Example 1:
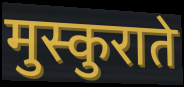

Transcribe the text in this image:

मुस्कुराते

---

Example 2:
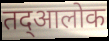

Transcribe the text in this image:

तद्आलोक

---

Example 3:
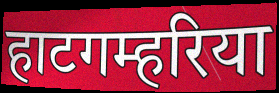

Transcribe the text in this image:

हाटगम्हरिया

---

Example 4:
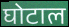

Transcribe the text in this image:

घोटाल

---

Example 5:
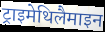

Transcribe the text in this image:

ट्राइमेथिलैमाइन